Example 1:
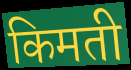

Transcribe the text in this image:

किमती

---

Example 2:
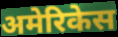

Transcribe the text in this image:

अमेरिकेस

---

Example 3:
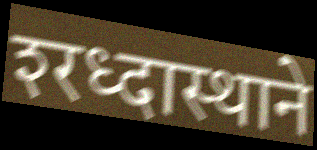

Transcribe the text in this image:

श्रध्दास्थाने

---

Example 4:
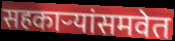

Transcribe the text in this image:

सहकाऱ्यांसमवेत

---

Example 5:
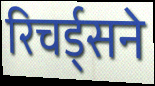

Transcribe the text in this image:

रिचर्ड्सने